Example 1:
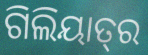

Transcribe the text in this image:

ଗିଲିୟାତ୍‍ର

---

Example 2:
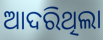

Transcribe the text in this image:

ଆଦରିଥିଲା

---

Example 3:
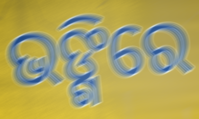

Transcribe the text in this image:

ଭଙ୍ଗିରେ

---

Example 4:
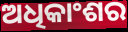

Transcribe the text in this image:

ଅଧିକାଂଶର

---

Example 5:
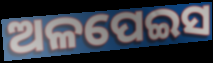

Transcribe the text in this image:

ଅଳପେଇସ